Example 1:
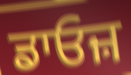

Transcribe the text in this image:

ਡਾਓਜ਼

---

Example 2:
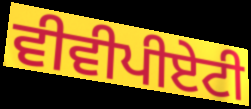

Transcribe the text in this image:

ਵੀਵੀਪੀਏਟੀ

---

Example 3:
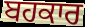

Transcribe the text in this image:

ਬਹਕਾਰ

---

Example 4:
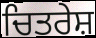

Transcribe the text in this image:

ਚਿਤਰੇਸ਼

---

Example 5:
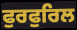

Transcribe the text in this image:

ਫੁਰਫੁਰਿਲ